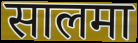
सालमा